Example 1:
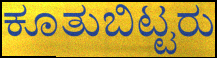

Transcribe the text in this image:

ಕೂತುಬಿಟ್ಟರು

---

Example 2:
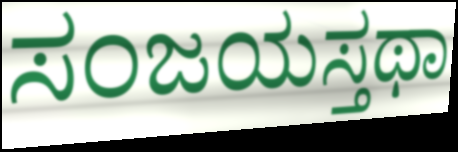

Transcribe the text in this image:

ಸಂಜಯಸ್ತಥಾ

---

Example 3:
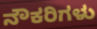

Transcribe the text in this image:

ನೌಕರಿಗಳು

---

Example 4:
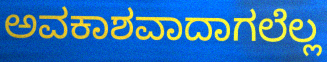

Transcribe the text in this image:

ಅವಕಾಶವಾದಾಗಲೆಲ್ಲ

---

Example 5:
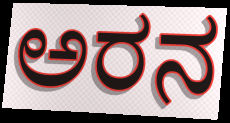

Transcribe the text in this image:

ಅರನ